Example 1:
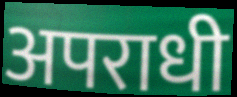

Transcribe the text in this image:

अपराधी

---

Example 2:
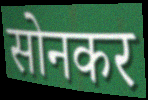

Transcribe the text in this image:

सोनकर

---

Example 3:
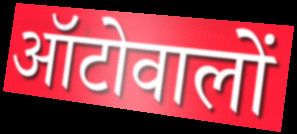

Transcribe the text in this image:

ऑटोवालों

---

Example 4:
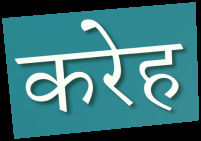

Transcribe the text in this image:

करेह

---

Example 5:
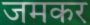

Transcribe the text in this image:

जमकर